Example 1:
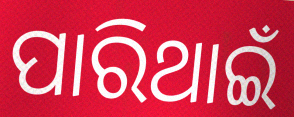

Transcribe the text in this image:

ପାରିଥାଇଁ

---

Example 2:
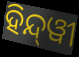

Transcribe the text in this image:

ହିନ୍ଦ୍‍ୱୀ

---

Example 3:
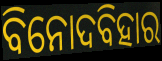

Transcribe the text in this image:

ବିନୋଦବିହାର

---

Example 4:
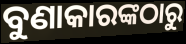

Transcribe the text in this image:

ବୁଣାକାରଙ୍କଠାରୁ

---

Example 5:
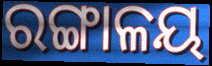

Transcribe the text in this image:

ରଙ୍ଗାଳୟ